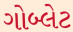
ગોબ્લેટ